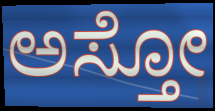
ಅಸ್ತೋ